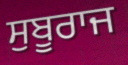
ਸੁਬੂਰਾਜ